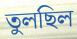
তুলছিল